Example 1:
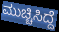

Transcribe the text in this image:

ಮುಚ್ಚಿಸಿದ್ದೆ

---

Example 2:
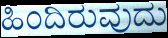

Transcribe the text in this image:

ಹಿಂದಿರುವುದು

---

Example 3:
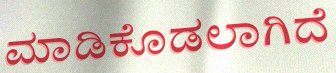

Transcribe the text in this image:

ಮಾಡಿಕೊಡಲಾಗಿದೆ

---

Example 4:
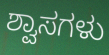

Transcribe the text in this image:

ಶ್ವಾಸಗಳು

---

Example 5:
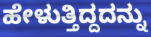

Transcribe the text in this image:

ಹೇಳುತ್ತಿದ್ದದನ್ನು